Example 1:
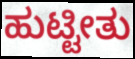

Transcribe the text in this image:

ಹುಟ್ಟೀತು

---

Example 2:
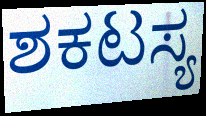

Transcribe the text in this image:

ಶಕಟಸ್ಯ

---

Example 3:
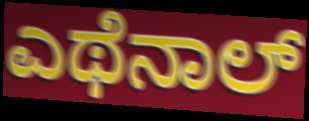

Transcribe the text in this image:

ಎಥೆನಾಲ್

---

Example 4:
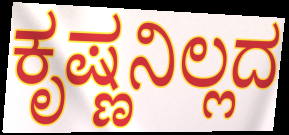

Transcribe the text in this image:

ಕೃಷ್ಣನಿಲ್ಲದ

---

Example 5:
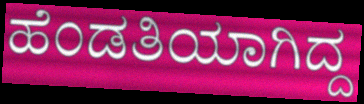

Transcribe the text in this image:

ಹೆಂಡತಿಯಾಗಿದ್ದ